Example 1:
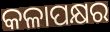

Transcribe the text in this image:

କଳାପକ୍ଷର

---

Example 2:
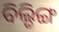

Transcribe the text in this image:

ବିଲ୍ଡିଙ୍ଗ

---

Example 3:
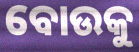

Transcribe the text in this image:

ବୋଉକୁ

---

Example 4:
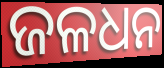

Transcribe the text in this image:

ଜଳଧନ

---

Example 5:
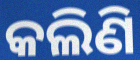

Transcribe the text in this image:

କଲିଣି